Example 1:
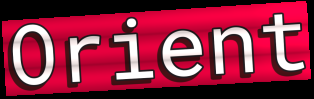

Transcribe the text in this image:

Orient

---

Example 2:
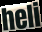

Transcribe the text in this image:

heli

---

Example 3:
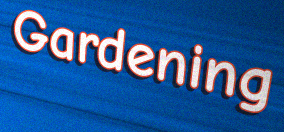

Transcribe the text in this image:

Gardening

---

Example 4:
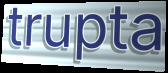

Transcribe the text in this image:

trupta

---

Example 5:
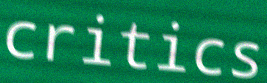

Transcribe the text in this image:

critics